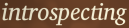
introspecting